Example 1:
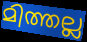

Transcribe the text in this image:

മിത്തല്ല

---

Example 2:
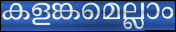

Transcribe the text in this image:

കളങ്കമെല്ലാം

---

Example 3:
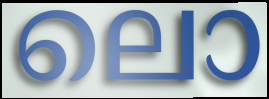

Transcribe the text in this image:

ലൊ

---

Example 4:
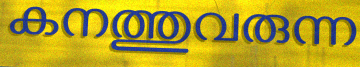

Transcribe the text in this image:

കനത്തുവരുന്ന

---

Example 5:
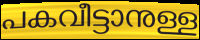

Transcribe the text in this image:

പകവീട്ടാനുള്ള